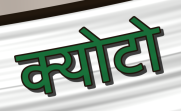
क्योटो